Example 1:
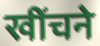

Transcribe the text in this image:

खींचने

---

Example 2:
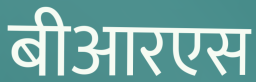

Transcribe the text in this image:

बीआरएस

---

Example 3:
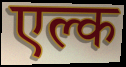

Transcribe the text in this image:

एल्क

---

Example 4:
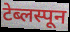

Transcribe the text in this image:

टेब्लस्पून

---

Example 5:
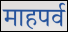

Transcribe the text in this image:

माहपर्व